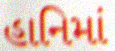
હાનિમાં